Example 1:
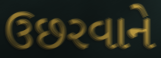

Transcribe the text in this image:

ઉછરવાને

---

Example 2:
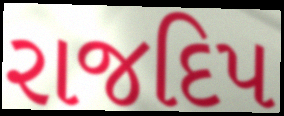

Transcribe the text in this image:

રાજદિપ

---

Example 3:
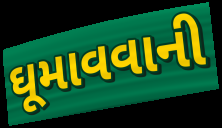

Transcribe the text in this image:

ઘૂમાવવાની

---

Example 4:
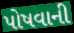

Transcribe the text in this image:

પોષવાની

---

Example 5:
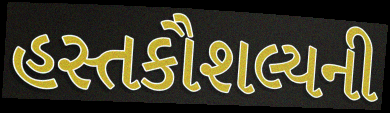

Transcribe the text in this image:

હસ્તકૌશલ્યની